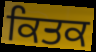
ਕਿਤਕ